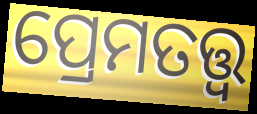
ପ୍ରେମତତ୍ତ୍ୱ